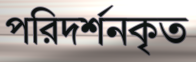
পরিদর্শনকৃত